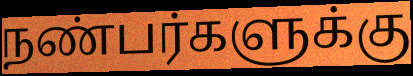
நண்பர்களுக்கு